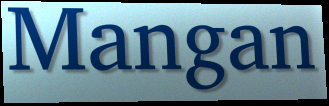
Mangan